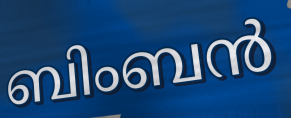
ബിംബൻ